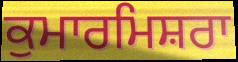
ਕੁਮਾਰਮਿਸ਼ਰਾ